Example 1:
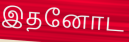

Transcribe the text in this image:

இதனோட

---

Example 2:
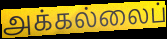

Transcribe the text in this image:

அக்கல்லைப்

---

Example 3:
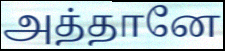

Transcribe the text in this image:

அத்தானே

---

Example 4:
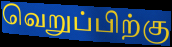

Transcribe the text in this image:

வெறுப்பிற்கு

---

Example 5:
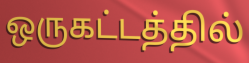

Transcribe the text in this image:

ஒருகட்டத்தில்